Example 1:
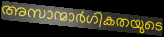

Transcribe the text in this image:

അസാന്മാർഗികതയുടെ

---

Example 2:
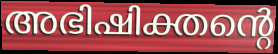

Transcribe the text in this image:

അഭിഷിക്തന്റെ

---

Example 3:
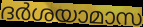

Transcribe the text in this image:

ദർശയാമാസ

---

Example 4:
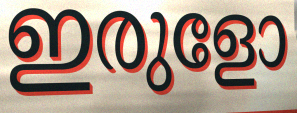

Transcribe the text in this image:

ഇരുളോ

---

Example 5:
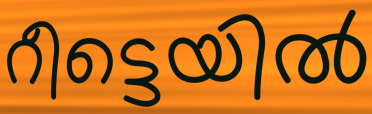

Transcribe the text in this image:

റീട്ടെയിൽ